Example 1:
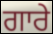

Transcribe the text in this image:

ਗਾਰੇ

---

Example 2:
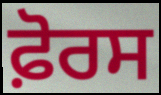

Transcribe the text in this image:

ਫ਼ੋਰਸ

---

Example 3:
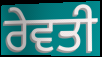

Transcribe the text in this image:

ਰੇਵਤੀ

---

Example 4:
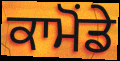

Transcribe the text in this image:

ਕਾਮੋਂਡੇ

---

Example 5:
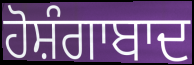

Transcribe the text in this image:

ਹੋਸ਼ੰਗਾਬਾਦ